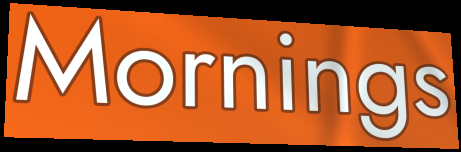
Mornings